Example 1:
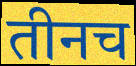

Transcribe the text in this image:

तीनच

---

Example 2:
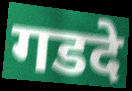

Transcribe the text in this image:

गडदे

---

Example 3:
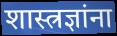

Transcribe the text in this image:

शास्त्रज्ञांना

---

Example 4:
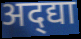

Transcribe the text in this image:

अद्द्या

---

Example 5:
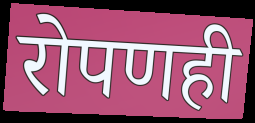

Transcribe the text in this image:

रोपणही